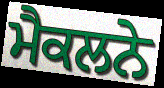
ਮੈਕਲਨੇ